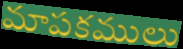
మాపకములు